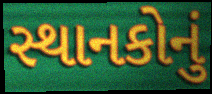
સ્થાનકોનું